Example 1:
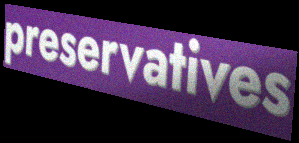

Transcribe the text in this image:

preservatives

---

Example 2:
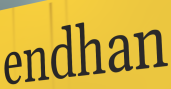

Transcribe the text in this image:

endhan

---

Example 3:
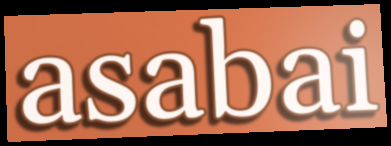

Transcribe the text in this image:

asabai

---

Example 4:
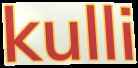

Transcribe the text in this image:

kulli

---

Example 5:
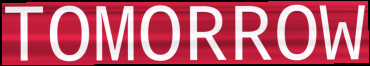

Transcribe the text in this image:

TOMORROW